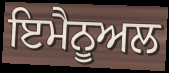
ਇਮੈਨੂਅਲ